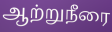
ஆற்றுநீரை